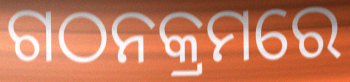
ଗଠନକ୍ରମରେ